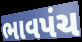
ભાવપંચ